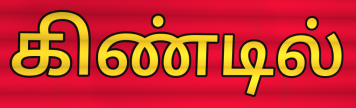
கிண்டில்